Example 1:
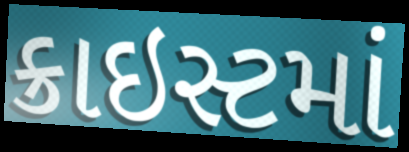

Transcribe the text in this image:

ક્રાઇસ્ટમાં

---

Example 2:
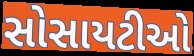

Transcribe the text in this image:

સોસાયટીઓ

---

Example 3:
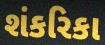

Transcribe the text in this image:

શંકરિકા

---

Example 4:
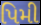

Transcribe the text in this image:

પિમી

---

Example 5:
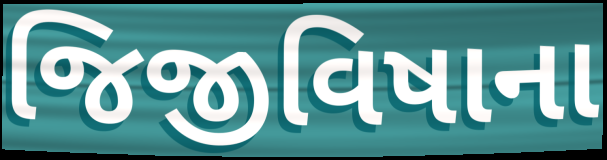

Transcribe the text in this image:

જિજીવિષાના